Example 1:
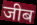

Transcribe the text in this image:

जीब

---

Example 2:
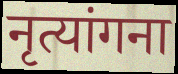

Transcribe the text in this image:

नृत्यांगना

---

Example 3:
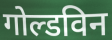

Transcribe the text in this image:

गोल्डविन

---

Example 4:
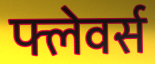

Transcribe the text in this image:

फ्लेवर्स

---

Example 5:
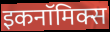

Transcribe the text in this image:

इकनॉमिक्स